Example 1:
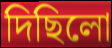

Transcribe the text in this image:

দিছিলো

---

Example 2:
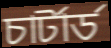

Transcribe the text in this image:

চার্টার্ড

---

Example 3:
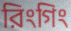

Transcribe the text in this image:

রিংগিং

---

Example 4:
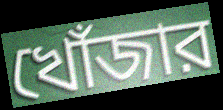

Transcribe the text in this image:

খোঁজার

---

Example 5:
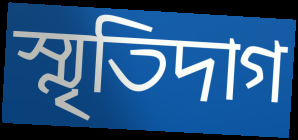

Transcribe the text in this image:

স্মৃতিদাগ